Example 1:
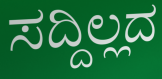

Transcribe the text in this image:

ಸದ್ದಿಲ್ಲದ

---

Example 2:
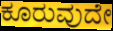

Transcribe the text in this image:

ಕೂರುವುದೇ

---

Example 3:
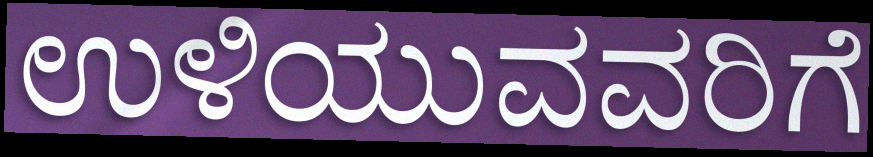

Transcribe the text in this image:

ಉಳಿಯುವವರಿಗೆ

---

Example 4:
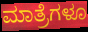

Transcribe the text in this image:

ಮಾತ್ರೆಗಳೂ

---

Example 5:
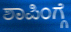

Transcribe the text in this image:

ಶಾಪಿಂಗ್ಗೆ